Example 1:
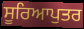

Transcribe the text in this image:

ਸੂਰਿਆਪੁਤਰ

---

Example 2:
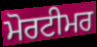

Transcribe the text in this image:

ਮੋਰਟੀਮਰ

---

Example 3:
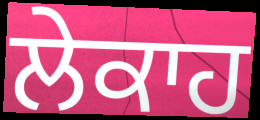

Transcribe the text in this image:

ਲੇਕਾਹ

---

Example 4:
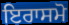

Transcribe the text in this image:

ਇਰਾਸਮੋ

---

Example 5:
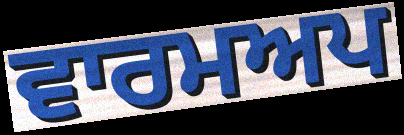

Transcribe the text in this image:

ਵਾਰਮਅਪ